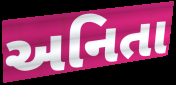
અનિતા